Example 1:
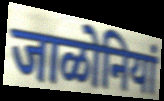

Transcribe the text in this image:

जाळोनियां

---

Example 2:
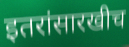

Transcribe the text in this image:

इतरांसारखीच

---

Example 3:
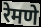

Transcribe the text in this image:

रेमणे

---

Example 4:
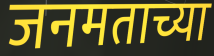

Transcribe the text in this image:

जनमताच्या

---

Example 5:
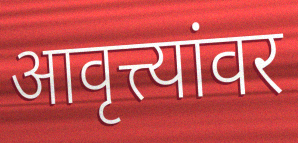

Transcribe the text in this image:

आवृत्त्यांवर